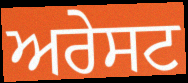
ਅਰੇਸਟ